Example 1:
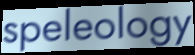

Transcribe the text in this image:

speleology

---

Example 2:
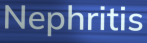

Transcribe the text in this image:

Nephritis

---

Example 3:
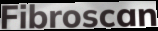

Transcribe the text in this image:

Fibroscan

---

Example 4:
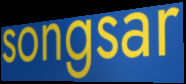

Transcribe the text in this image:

songsar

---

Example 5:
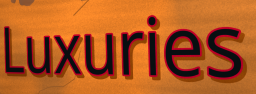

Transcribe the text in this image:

Luxuries